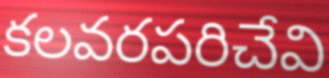
కలవరపరిచేవి